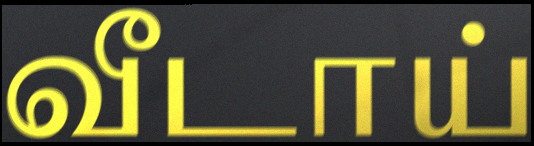
வீடாய்